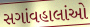
સગાંવહાલાંઓ